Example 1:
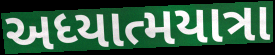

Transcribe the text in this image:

અધ્યાત્મયાત્રા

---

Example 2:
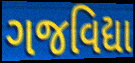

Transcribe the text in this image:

ગજવિદ્યા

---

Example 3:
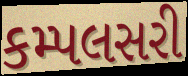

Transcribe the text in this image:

કમ્પલસરી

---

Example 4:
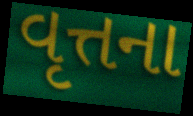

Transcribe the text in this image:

વૃત્તના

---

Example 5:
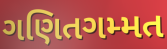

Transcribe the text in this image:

ગણિતગમ્મત